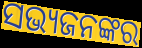
ସଭ୍ୟଜନଙ୍କର